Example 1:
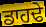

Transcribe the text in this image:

ਡਾਹਢੇ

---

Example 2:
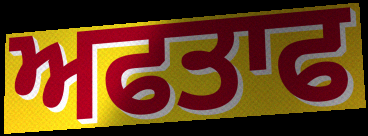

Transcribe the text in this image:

ਅਫਤਾਫ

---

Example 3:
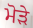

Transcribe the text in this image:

ਮੋੜੇ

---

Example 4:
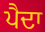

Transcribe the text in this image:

ਪੈਦਾ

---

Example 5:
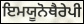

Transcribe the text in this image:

ਇਮਯੂਨੋਥੈਰੇਪੀ